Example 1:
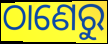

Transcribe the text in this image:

ଠାଣେରୁ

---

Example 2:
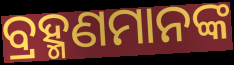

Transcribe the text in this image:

ବ୍ରହ୍ମଣମାନଙ୍କ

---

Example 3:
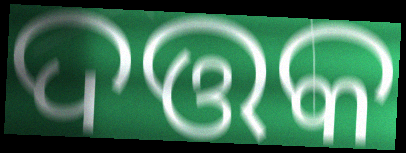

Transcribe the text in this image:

ଦତ୍ତକ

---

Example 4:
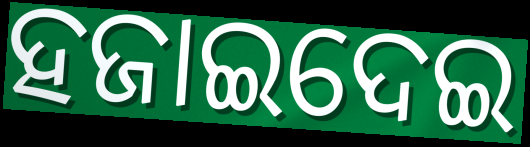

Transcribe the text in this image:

ହଜାଇଦେଇ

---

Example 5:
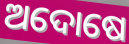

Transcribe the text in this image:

ଅଦୋଷେ